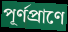
পূর্ণপ্রাণে